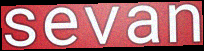
sevan